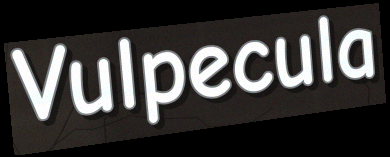
Vulpecula